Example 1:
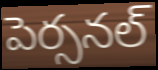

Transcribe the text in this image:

పెర్సనల్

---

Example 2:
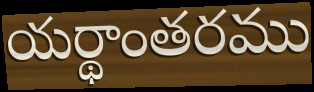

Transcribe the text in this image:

యర్థాంతరము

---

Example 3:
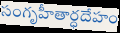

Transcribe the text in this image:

సంగృహీతార్ధదేహం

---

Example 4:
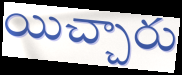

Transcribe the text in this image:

యిచ్చారు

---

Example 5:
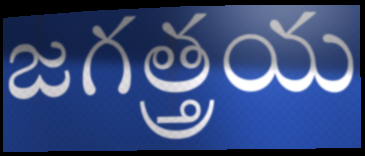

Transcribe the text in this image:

జగత్త్రయ